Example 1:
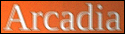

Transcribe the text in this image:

Arcadia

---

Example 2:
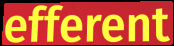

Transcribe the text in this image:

efferent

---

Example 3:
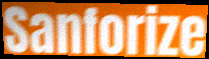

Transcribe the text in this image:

Sanforize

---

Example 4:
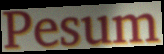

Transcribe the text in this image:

Pesum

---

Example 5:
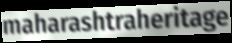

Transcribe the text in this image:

maharashtraheritage